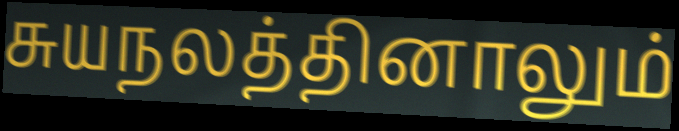
சுயநலத்தினாலும்